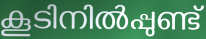
കൂടിനിൽപ്പുണ്ട്